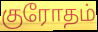
குரோதம்